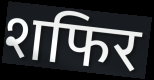
शफिर